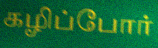
கழிப்போர்